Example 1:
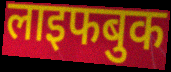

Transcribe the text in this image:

लाइफबुक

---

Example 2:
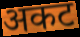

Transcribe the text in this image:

अकट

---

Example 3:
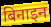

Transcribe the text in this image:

बिनाइन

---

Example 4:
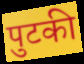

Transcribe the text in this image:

पुटकी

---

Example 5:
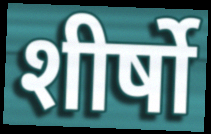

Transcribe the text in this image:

शीर्षो